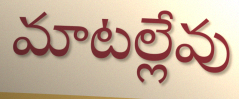
మాటల్లేవు